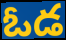
ఓడ